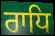
ਰਾਧਿ